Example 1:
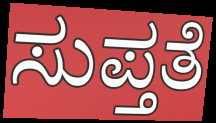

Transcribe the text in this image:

ಸುಪ್ತತೆ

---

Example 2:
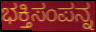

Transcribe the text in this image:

ಭಕ್ತಿಸಂಪನ್ನ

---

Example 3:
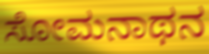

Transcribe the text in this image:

ಸೋಮನಾಥನ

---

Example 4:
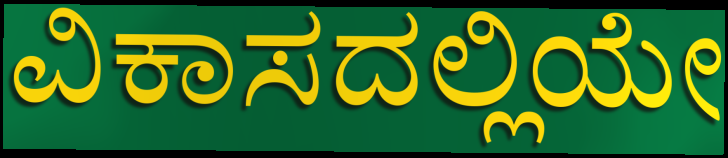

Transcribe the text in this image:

ವಿಕಾಸದಲ್ಲಿಯೇ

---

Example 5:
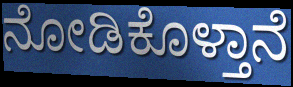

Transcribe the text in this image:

ನೋಡಿಕೊಳ್ತಾನೆ